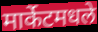
मार्केटमधले